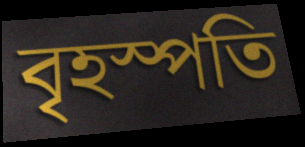
বৃহস্পতি